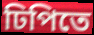
ঢিপিতে